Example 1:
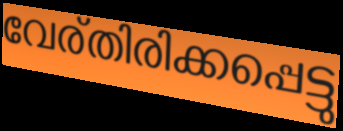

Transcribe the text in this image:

വേര്തിരിക്കപ്പെട്ടു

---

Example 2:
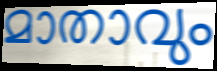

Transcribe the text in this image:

മാതാവും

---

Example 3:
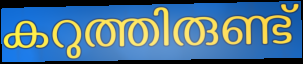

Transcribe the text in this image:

കറുത്തിരുണ്ട്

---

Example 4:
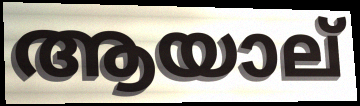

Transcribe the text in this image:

ആയാല്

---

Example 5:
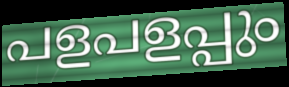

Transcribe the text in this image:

പളപളപ്പും